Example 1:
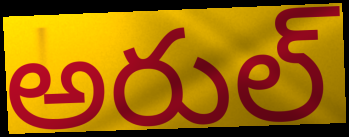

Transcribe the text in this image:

అరుల్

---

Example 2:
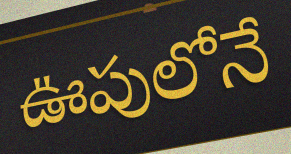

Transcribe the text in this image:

ఊపులోనే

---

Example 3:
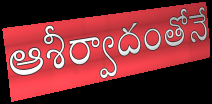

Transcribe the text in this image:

ఆశీర్వాదంతోనే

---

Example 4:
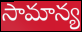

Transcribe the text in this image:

సామాన్య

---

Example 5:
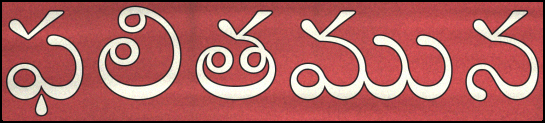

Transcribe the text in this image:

ఫలితమున